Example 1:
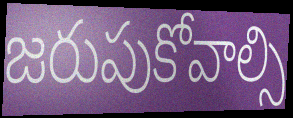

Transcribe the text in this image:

జరుపుకోవాల్సి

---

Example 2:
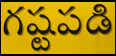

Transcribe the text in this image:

గష్టపడి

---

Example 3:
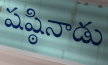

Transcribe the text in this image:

షష్ఠినాడు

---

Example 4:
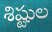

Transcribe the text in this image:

శిష్టుల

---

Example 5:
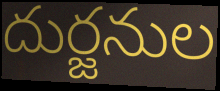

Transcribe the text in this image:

దుర్జనుల